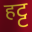
हट्ट